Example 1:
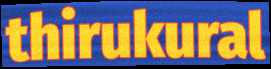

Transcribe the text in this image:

thirukural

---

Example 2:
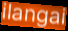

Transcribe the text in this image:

ilangai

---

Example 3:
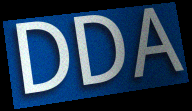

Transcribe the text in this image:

DDA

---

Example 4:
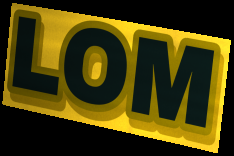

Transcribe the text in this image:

LOM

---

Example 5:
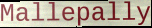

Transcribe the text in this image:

Mallepally